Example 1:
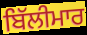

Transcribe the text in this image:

ਬਿੱਲੀਮਾਰ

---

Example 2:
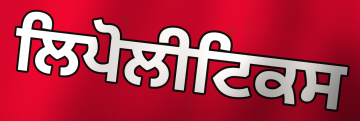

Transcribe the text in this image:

ਲਿਪੋਲੀਟਿਕਸ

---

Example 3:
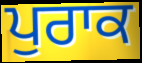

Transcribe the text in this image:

ਪੁਰਾਕ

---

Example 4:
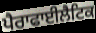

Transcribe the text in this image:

ਪੈਰਾਫਾਈਲੈਟਿਕ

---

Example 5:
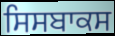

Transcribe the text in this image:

ਸਿਸਬਾਕਸ